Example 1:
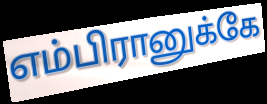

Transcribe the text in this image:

எம்பிரானுக்கே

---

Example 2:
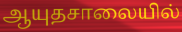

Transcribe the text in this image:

ஆயுதசாலையில்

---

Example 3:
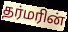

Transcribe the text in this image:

தர்மரின்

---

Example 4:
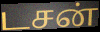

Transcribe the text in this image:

டசன்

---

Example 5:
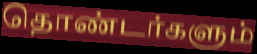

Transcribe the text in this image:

தொண்டர்களும்